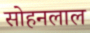
सोहनलाल